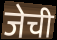
जेची